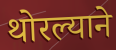
थोरल्याने